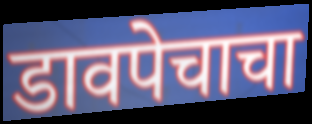
डावपेचाचा